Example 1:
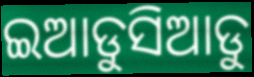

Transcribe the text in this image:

ଇଆଡୁସିଆଡୁ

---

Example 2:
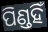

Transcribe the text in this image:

ପିଣ୍ଡହିଁ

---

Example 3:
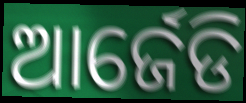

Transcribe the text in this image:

ଆର୍ଜେଡି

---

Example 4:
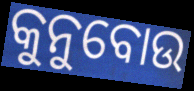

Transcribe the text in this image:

କୁନୁବୋଉ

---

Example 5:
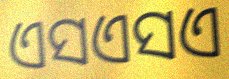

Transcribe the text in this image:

ଏସଏସଏ